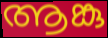
ആങ്കു